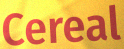
Cereal